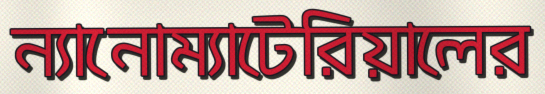
ন্যানোম্যাটেরিয়ালের